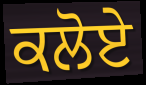
ਕਲੋਏ